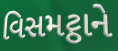
વિસમટ્ઠાને